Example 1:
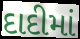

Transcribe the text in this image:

દાદીમાં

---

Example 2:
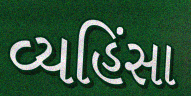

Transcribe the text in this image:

વ્યહિંસા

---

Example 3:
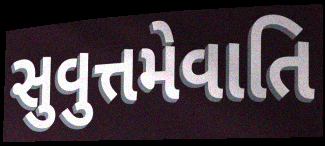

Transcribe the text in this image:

સુવુત્તમેવાતિ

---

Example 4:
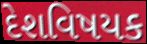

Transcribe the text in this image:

દેશવિષયક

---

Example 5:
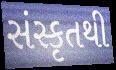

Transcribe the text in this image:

સંસ્કૃતથી